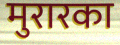
मुरारका